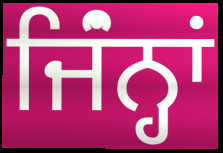
ਜਿੰਂਨ੍ਹਾਂ